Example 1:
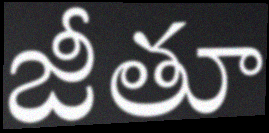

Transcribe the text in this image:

జీతూ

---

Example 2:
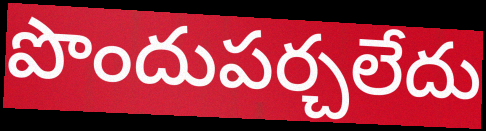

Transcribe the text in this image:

పొందుపర్చలేదు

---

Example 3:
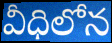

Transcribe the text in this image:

వీధిలోన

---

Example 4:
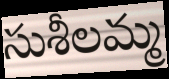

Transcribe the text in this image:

సుశీలమ్మ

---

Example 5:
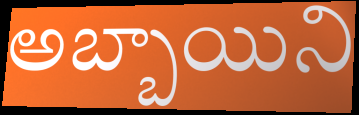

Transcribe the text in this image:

అబ్బాయిని